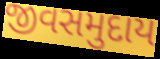
જીવસમુદાય